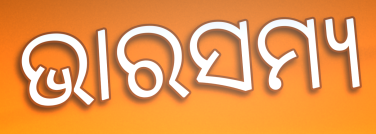
ଭାରସମ୍ୟ